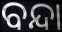
ବନ୍ଦା